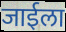
जाईला